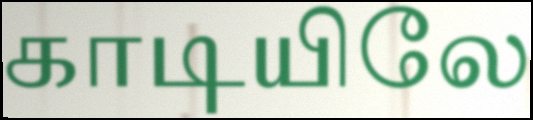
காடியிலே